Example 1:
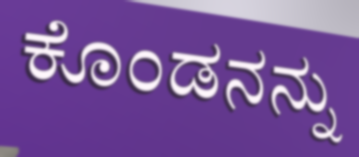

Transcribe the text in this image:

ಕೊಂಡನನ್ನು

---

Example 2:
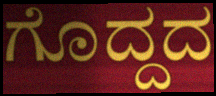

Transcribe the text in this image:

ಗೊದ್ದದ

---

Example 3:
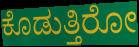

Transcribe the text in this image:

ಕೊಡುತ್ತಿರೋ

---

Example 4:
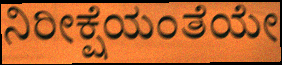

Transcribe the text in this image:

ನಿರೀಕ್ಷೆಯಂತೆಯೇ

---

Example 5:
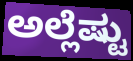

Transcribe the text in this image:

ಅಲ್ಲೆಷ್ಟು